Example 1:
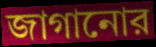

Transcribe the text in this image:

জাগানোর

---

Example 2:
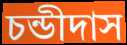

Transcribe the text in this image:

চন্ডীদাস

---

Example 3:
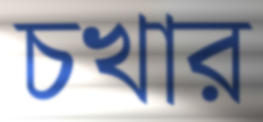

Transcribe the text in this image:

চখার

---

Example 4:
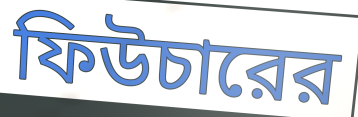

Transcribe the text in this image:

ফিউচারের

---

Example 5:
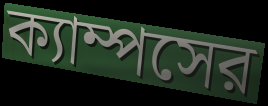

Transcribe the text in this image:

ক্যাম্পসের